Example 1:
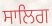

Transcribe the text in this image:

ਸਾਲਿਗ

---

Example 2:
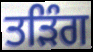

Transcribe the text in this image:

ਤੜਿੰਗ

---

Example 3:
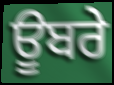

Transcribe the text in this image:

ਊਬਰੇ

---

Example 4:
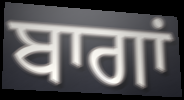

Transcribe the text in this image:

ਬਾਗਾਂ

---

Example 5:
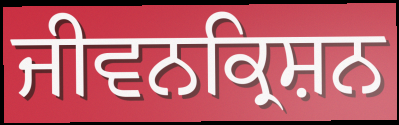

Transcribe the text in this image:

ਜੀਵਨਕ੍ਰਿਸ਼ਨ